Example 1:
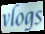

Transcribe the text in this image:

vlogs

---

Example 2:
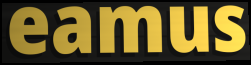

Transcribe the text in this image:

eamus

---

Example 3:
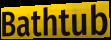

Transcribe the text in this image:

Bathtub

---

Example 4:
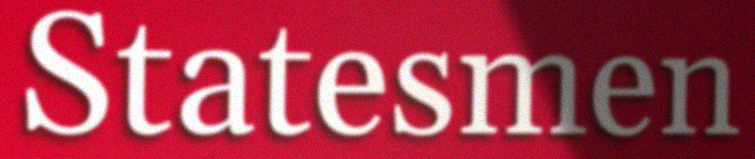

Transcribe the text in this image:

Statesmen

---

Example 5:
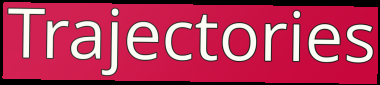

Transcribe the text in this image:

Trajectories